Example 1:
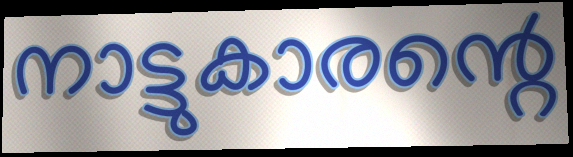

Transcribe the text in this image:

നാട്ടുകാരന്റെ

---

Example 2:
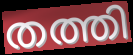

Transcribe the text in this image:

തത്തി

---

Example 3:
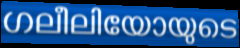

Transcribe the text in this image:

ഗലീലിയോയുടെ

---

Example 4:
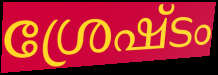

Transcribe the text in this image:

ശ്രേഷ്ടം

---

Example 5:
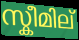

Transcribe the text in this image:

സ്കീമില്